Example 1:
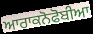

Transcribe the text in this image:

ਆਰਾਕਨੋਫੋਬੀਆ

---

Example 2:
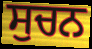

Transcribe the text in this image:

ਸੁਚਨ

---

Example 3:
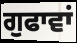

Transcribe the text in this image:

ਗੁਫਾਵਾਂ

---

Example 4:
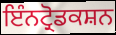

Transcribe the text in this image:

ਇੰਨਟ੍ਰੋਡਕਸ਼ਨ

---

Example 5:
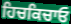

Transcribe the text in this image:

ਹਿਚਕਿਚਾਓ